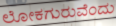
ಲೋಕಗುರುವೆಂದು